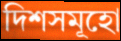
দিশসমূহো